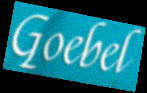
Goebel